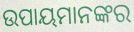
ଉପାୟମାନଙ୍କର